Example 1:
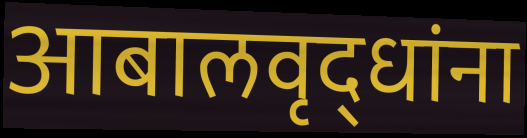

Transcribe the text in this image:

आबालवृद्धांना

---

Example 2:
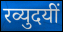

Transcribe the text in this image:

रव्युदयीं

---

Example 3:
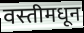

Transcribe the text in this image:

वस्तीमधून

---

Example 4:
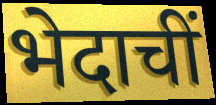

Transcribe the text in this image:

भेदाचीं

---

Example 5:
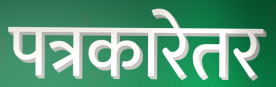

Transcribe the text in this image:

पत्रकारेतर